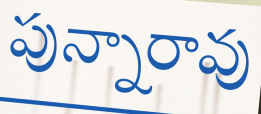
పున్నారావు